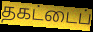
தகட்டைப்